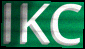
IKC